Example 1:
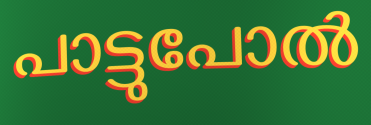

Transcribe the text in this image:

പാട്ടുപോൽ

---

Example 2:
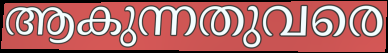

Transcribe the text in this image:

ആകുന്നതുവരെ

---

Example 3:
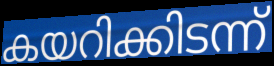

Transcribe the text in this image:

കയറിക്കിടന്ന്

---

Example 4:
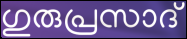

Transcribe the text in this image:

ഗുരുപ്രസാദ്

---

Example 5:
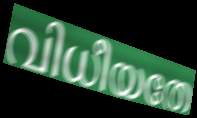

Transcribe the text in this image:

വിധീയതേ